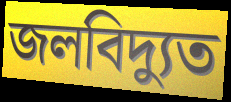
জলবিদ্যুত